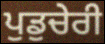
ਪੁਡੁਚੇਰੀ